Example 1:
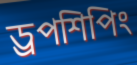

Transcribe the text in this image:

ড্রপশিপিং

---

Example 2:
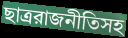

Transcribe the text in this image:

ছাত্ররাজনীতিসহ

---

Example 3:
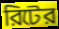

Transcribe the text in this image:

রিটের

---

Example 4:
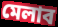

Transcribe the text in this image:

মেলাব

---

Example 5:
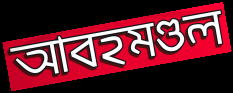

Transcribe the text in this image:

আবহমণ্ডল